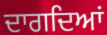
ਦਾਗਦਿਆਂ